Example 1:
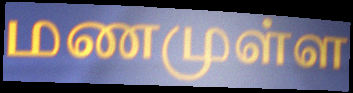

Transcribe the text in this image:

மணமுள்ள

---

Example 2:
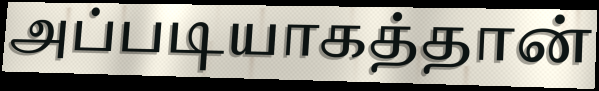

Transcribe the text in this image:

அப்படியாகத்தான்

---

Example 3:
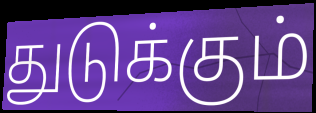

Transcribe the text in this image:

துடுக்கும்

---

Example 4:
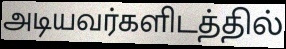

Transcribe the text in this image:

அடியவர்களிடத்தில்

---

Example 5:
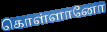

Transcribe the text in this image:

கொள்ளானோ